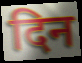
दिन